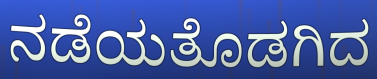
ನಡೆಯತೊಡಗಿದ